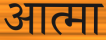
आत्मा